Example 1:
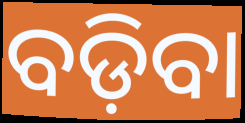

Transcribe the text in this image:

ବଡ଼ିବା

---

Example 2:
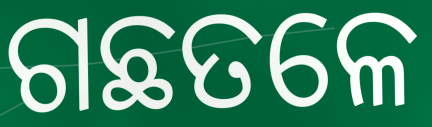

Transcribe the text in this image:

ଗଛତଳେ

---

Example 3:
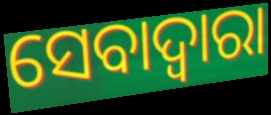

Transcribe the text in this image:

ସେବାଦ୍ବାରା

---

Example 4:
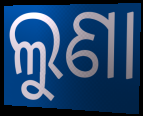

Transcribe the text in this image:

ଲୁଣା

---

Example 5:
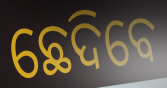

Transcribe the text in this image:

ଛେଦିବେ